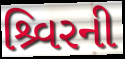
શ્ર્વિરની